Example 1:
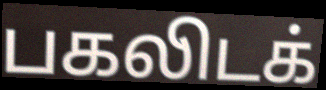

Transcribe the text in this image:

பகலிடக்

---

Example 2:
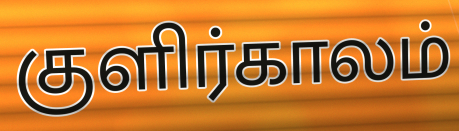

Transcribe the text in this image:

குளிர்காலம்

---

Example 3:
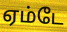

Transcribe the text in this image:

ஏம்டே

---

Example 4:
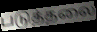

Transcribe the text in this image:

படுத்தலை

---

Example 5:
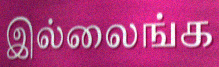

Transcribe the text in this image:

இல்லைங்க